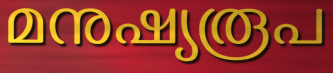
മനുഷ്യരൂപ